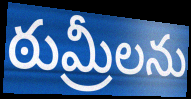
ఠుమ్రీలను